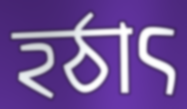
হঠাৎ